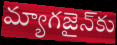
మ్యాగజైన్‌కు